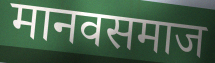
मानवसमाज